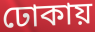
ঢোকায়